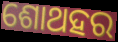
ଶୋଥହର